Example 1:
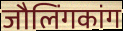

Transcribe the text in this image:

जौलिंगकांग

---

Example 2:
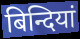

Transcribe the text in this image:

बिन्दियां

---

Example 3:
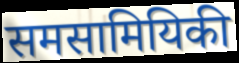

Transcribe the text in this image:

समसामियिकी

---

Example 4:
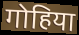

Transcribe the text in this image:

गोहिया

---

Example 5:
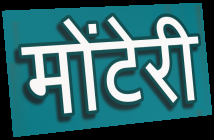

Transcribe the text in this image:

मोंटेरी